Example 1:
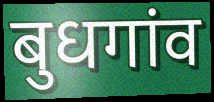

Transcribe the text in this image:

बुधगांव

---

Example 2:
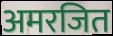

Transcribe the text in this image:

अमरजित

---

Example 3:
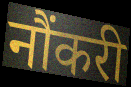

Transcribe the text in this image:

नौंकरी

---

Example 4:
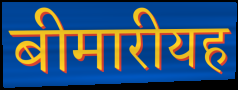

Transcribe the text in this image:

बीमारीयह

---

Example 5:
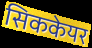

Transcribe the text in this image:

सिककेयर